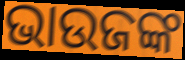
ଭାଉଜଙ୍କ